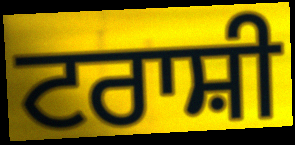
ਟਰਾਸ਼ੀ